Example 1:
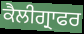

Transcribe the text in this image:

ਕੈਲੀਗ੍ਰਾਫਰ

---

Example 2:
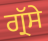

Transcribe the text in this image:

ਗ੍ਰੱਸੇ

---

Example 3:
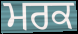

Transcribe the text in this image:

ਮਰਕ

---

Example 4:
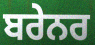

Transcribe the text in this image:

ਬਰੇਨਰ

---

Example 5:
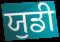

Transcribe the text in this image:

ਯੁਡੀ